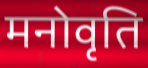
मनोवृति